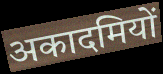
अकादमियों